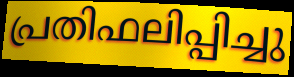
പ്രതിഫലിപ്പിച്ചു